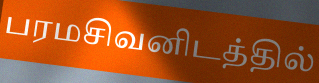
பரமசிவனிடத்தில்